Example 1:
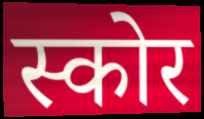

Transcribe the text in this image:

स्कोर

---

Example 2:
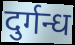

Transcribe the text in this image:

दुर्गन्‍ध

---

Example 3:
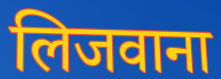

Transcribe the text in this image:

लिजवाना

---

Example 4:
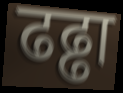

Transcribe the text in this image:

ढढ्ढा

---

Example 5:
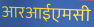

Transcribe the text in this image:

आरआईएमसी